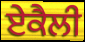
ਏਕੈਲੀ